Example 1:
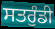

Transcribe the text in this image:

ਸਤਰੁੰਡੀ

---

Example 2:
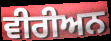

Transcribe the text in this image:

ਵੀਰੀਅਨ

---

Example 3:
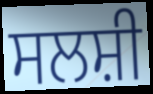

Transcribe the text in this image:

ਸਲਸ਼ੀ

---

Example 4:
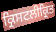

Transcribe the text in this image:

ਕ੍ਰਿਸਟਲੀਕ੍ਰਿਤ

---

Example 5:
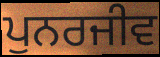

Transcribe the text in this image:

ਪੁਨਰਜੀਵ